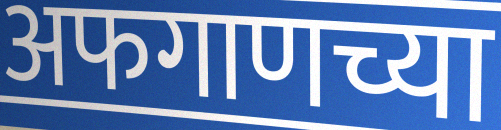
अफगाणच्या